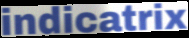
indicatrix